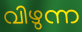
വിഴുന്ന